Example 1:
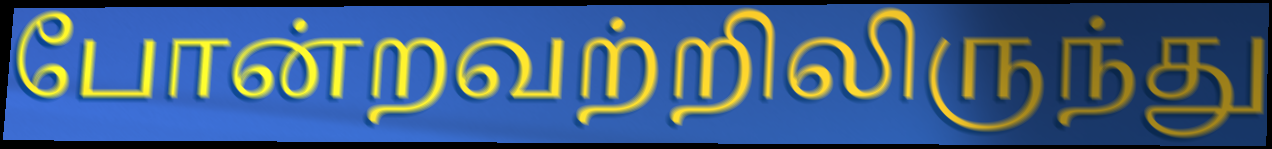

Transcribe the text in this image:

போன்றவற்றிலிருந்து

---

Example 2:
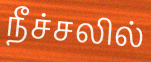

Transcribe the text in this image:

நீச்சலில்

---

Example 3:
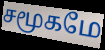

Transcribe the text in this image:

சமூகமே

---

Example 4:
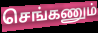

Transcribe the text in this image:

செங்கணும்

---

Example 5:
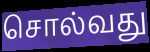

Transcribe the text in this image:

சொல்வது